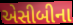
એસીબીના